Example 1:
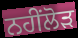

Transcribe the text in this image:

ਨਹੀਂਲੋੜ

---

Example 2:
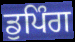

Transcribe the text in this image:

ਡੁਪਿੰਗ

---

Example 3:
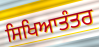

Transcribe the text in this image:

ਸਿਖਿਆਤੰਤਰ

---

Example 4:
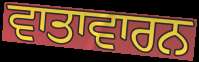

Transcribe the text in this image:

ਵਾਤਾਵਾਰਨ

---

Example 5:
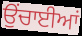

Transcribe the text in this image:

ਉਂਚਾਈਆਂ